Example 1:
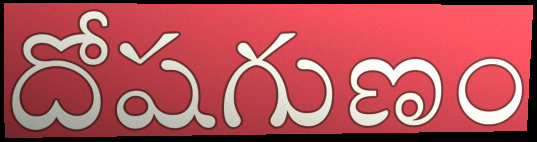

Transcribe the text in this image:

దోషగుణం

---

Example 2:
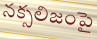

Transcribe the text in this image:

నక్సలిజంపై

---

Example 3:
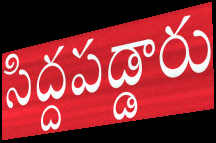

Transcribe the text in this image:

సిద్దపడ్డారు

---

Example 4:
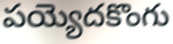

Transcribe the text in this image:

పయ్యెదకొంగు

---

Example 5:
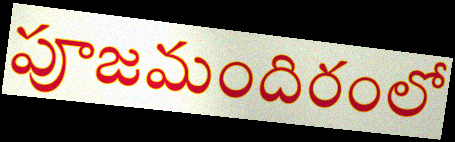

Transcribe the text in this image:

పూజమందిరంలో